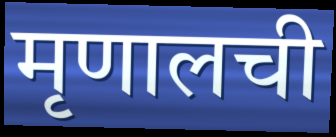
मृणालची